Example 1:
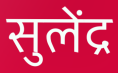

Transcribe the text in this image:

सुलेंद्र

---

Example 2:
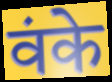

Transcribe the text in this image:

वंके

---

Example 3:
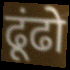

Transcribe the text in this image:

ढूंढो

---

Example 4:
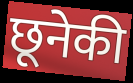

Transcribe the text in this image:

छूनेकी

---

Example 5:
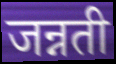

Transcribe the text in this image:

जन्नती